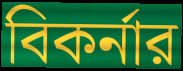
বিকর্নার